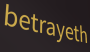
betrayeth